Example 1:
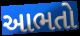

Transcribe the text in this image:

આભતો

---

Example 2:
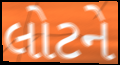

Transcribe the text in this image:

લોટને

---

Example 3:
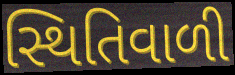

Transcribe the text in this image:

સ્થિતિવાળી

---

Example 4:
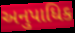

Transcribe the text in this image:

અનુપાધિક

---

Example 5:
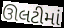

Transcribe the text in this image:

ઊલટીમાં